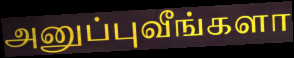
அனுப்புவீங்களா